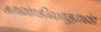
காண்கிலாதான்